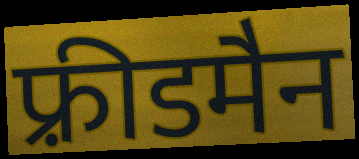
फ़्रीडमैन